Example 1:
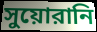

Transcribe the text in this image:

সুয়োরানি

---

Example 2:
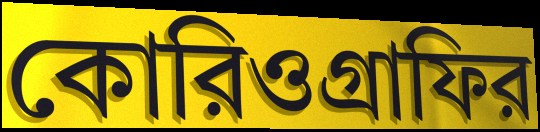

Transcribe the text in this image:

কোরিওগ্রাফির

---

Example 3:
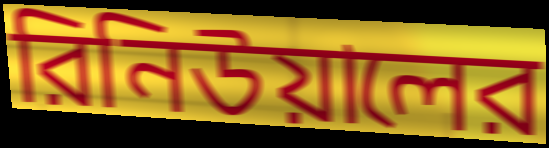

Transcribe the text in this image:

রিনিউয়ালের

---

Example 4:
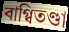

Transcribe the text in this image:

বাগ্বিতণ্ডা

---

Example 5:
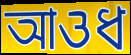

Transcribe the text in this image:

আওধ